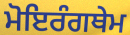
ਮੋਇਰੰਗਥੇਮ